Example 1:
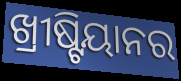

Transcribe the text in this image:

ଖ୍ରୀଷ୍ଟିୟାନର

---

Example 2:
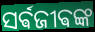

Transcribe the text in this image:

ସର୍ଵଜୀଵଙ୍କ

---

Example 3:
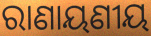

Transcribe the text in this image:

ରାଣାୟଣୀୟ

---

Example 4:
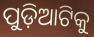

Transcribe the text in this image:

ପୁଡ଼ିଆଟିକୁ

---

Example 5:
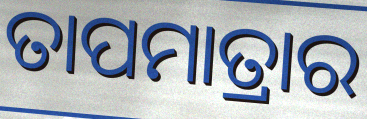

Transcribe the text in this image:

ତାପମାତ୍ରାର